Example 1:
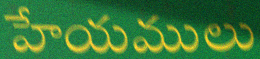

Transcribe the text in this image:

హేయములు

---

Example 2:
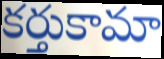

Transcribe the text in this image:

కర్తుకామా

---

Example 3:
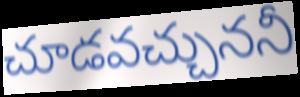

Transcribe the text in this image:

చూడవచ్చుననీ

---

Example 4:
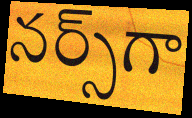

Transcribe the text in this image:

నర్స్‌గా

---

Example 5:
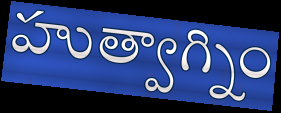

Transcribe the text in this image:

హుత్వాగ్నిం